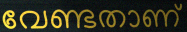
വേണ്ടതാണ്